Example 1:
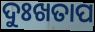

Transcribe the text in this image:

ଦୁଃଖତାପ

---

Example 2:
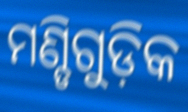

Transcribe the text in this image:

ମଣ୍ଡିଗୁଡ଼ିକ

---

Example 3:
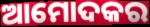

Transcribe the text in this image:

ଆମୋଦକର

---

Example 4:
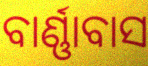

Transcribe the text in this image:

ବାର୍ଣ୍ଣାବାସ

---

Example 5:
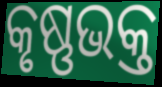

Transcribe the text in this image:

କୃଷ୍ଣଭକ୍ତ